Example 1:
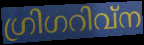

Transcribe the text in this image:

ഗ്രിഗറിവ്ന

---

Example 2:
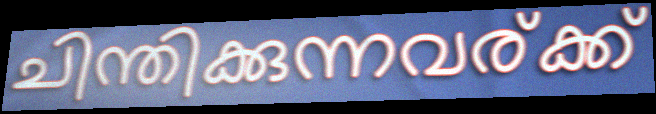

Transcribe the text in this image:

ചിന്തിക്കുന്നവര്ക്ക്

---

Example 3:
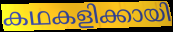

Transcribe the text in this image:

കഥകളിക്കായി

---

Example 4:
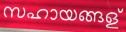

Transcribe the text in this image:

സഹായങ്ങള്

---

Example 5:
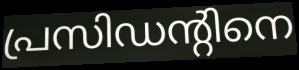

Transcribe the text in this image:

പ്രസിഡന്റിനെ